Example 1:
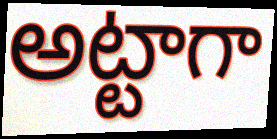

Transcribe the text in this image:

అట్టాగా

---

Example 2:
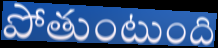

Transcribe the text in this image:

పోతుంటుంది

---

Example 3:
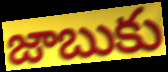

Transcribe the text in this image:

జాబుకు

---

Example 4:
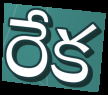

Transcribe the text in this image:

రేక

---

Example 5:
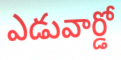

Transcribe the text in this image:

ఎడువార్డో